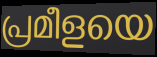
പ്രമീളയെ